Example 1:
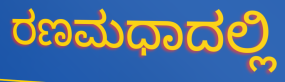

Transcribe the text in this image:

ರಣಮಧಾದಲ್ಲಿ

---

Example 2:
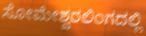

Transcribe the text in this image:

ಸೋಮೇಶ್ವರಲಿಂಗದಲ್ಲಿ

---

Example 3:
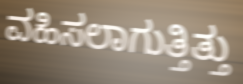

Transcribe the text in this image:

ವಹಿಸಲಾಗುತ್ತಿತ್ತು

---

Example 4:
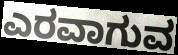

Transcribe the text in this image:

ಎರವಾಗುವ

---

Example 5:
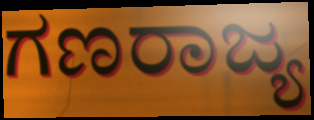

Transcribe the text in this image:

ಗಣರಾಜ್ಯ